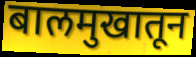
बालमुखातून